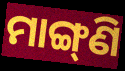
ମାଙ୍ଗ୍‌ଣି